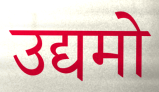
उद्यमो